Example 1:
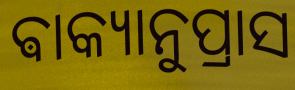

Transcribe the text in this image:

ଵାକ୍ୟାନୁପ୍ରାସ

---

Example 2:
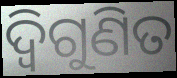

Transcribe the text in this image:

ଦ୍ଵିଗୁଣିତ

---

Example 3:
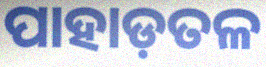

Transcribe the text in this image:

ପାହାଡ଼ତଳ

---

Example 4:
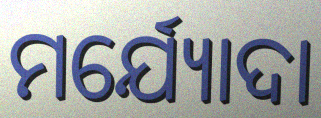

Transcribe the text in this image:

ମର୍ଯ୍ୟୋଦା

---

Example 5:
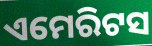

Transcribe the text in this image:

ଏମେରିଟସ